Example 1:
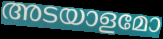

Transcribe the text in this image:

അടയാളമോ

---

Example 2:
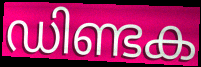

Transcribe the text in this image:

ഡിണ്ടക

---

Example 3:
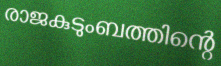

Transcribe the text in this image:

രാജകുടുംബത്തിന്റെ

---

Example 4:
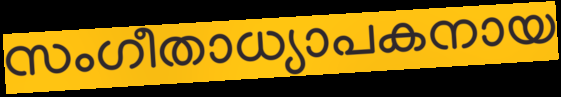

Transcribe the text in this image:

സംഗീതാധ്യാപകനായ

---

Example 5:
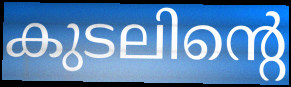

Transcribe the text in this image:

കുടലിന്റെ